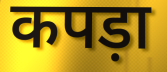
कपड़ा